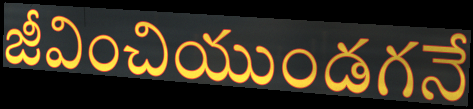
జీవించియుండగనే